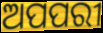
ଅପପରୀ